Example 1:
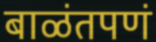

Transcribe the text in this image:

बाळंतपणं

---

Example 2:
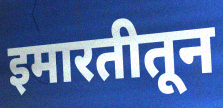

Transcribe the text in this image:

इमारतीतून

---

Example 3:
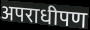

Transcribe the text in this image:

अपराधीपण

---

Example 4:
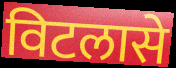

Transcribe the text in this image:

विटलासे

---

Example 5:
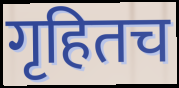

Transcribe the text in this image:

गृहितच